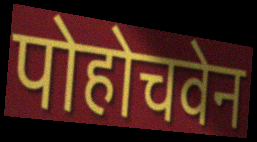
पोहोचवेन